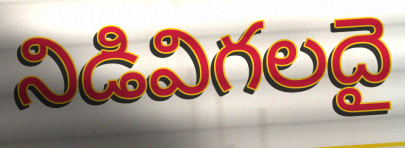
నిడివిగలదై